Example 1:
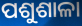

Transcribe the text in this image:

ପଶୁଶାଳା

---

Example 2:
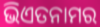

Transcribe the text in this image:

ଭିଏତନାମର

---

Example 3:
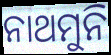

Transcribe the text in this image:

ନାଥମୁନି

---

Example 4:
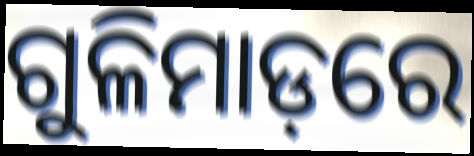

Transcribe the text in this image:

ଗୁଳିମାଡ଼ରେ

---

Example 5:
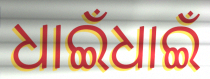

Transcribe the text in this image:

ଧାଇଁଧାଇଁ